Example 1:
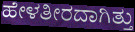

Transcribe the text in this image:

ಹೇಳತೀರದಾಗಿತ್ತು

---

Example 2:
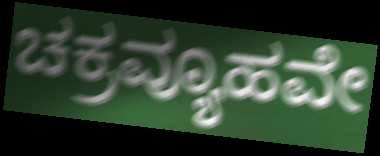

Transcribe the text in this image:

ಚಕ್ರವ್ಯೂಹವೇ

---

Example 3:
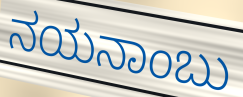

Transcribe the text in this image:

ನಯನಾಂಬು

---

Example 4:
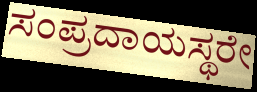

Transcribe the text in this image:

ಸಂಪ್ರದಾಯಸ್ಥರೇ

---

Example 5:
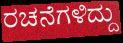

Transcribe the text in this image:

ರಚನೆಗಳಿದ್ದು